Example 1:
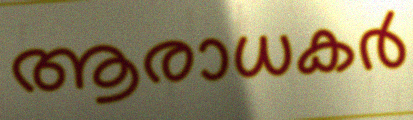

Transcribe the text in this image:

ആരാധകർ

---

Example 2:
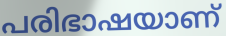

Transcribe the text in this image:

പരിഭാഷയാണ്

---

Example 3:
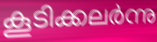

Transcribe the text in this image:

കൂടിക്കലർന്നു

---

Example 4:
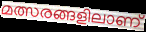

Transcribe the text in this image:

മത്സരങ്ങളിലാണ്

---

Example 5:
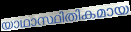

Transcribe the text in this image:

യാഥാസ്ഥിതികമായ